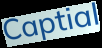
Captial